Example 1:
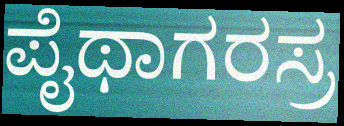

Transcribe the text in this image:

ಪೈಥಾಗರಸ್ರ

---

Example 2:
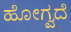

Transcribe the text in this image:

ಹೋಗ್ವದೆ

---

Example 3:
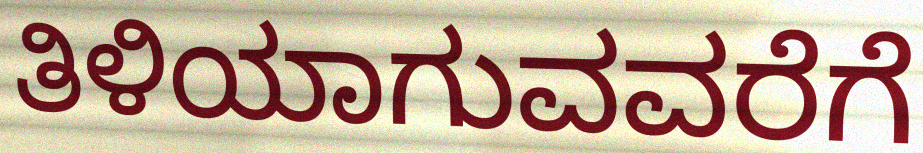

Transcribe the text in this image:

ತಿಳಿಯಾಗುವವರೆಗೆ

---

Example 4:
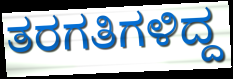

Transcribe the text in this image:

ತರಗತಿಗಳಿದ್ದ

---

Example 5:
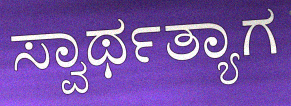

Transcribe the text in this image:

ಸ್ವಾರ್ಥತ್ಯಾಗ